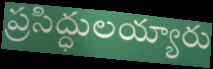
ప్రసిద్ధులయ్యారు